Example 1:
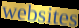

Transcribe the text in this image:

websites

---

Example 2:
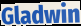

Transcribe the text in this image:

Gladwin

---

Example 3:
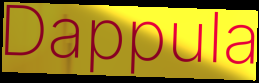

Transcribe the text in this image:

Dappula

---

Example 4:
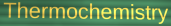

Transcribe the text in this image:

Thermochemistry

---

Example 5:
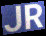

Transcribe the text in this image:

JR